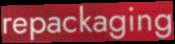
repackaging